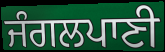
ਜੰਗਲਪਾਣੀ